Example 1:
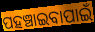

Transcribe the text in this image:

ପହଞ୍ଚାଇବାପାଇଁ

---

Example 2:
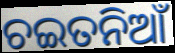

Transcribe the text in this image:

ଚଇତନିଆଁ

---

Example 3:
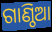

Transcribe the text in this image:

ଗାଣ୍ଠିଆ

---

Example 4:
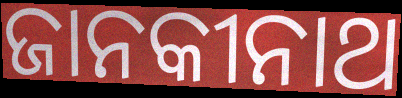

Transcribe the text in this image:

ଜାନକୀନାଥ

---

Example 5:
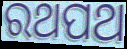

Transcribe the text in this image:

ରଥପଥ